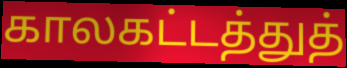
காலகட்டத்துத்